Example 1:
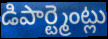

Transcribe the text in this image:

డిపార్ట్మెంట్లు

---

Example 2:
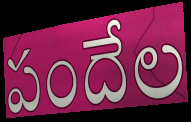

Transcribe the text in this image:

పందేల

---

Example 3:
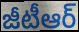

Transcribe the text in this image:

జీటీఆర్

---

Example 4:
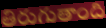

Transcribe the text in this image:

తిరుగుతాంది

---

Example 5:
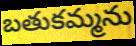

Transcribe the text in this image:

బతుకమ్మను